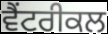
ਵੈਂਟਰੀਕਲ